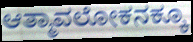
ಆತ್ಮಾವಲೋಕನಕ್ಕೂ